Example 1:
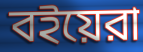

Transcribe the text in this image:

বইয়েরা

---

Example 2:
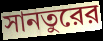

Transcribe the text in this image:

সানতুরের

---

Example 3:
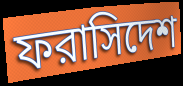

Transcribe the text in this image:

ফরাসিদেশ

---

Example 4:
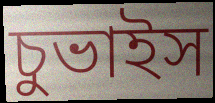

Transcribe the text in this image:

চুভাইস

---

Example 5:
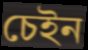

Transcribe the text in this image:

চেইন